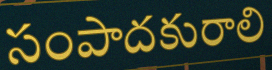
సంపాదకురాలి